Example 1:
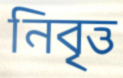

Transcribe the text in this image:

নিবৃত্ত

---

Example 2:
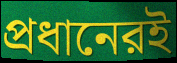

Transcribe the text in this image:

প্রধানেরই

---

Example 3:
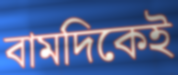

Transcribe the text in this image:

বামদিকেই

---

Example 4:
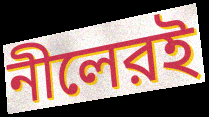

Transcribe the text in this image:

নীলেরই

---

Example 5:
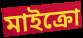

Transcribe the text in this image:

মাইক্রো